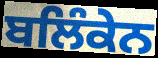
ਬਲਿੰਕੇਨ